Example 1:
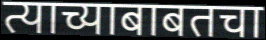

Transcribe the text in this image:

त्याच्याबाबतचा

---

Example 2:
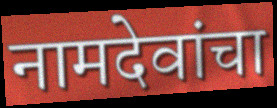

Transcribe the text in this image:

नामदेवांचा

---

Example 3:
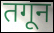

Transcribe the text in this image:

तगून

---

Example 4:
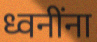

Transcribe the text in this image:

ध्वनींना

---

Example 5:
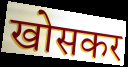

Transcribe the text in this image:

खोसकर